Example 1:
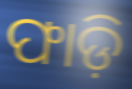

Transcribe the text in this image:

ଫାଡ଼ି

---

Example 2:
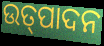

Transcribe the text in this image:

ଉତ୍‌ପାଦନ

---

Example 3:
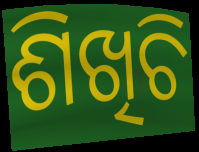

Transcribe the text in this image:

ଶିଖିଚି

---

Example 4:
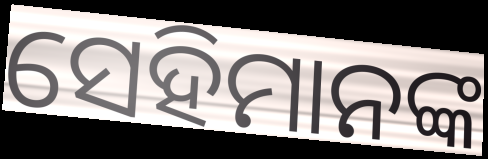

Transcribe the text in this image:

ସେହିମାନଙ୍କ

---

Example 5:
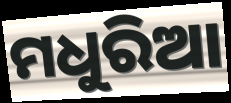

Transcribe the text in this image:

ମଧୁରିଆ